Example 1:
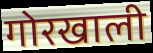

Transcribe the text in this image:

गोरखाली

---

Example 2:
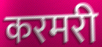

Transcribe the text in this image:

करमरी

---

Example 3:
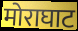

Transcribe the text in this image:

मोराघाट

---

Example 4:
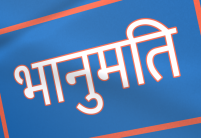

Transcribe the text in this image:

भानुमति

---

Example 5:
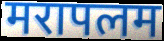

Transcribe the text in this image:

मरापलम